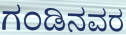
ಗಂಡಿನವರ